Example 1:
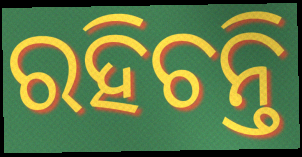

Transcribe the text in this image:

ରହିଚନ୍ତି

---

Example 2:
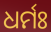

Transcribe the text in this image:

ଧର୍ମଃ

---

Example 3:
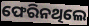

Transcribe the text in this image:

ଫେରିନଥିଲେ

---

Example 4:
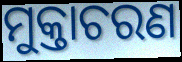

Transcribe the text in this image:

ମୁକ୍ତାଚରଣ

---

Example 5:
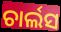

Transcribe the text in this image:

ଚାର୍ଲସ